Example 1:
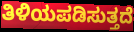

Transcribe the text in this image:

ತಿಳಿಯಪಡಿಸುತ್ತದೆ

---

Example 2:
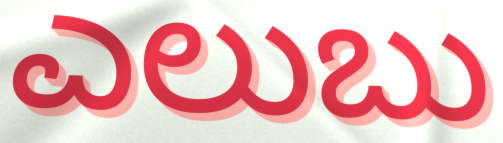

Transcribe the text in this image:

ಎಲುಬು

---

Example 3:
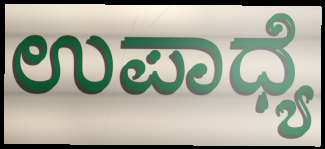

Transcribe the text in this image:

ಉಪಾಧ್ಯೆ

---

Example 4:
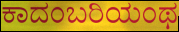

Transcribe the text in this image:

ಕಾದಂಬರಿಯಂಥ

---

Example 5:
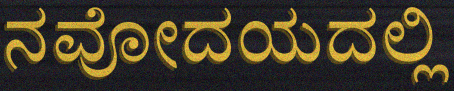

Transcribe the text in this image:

ನವೋದಯದಲ್ಲಿ